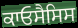
ਕਾਓਸੈਸਿਸ